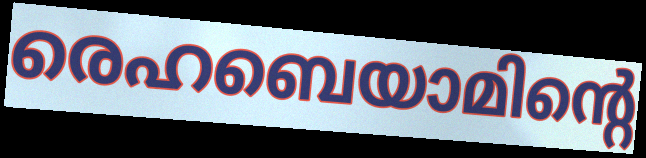
രെഹബെയാമിന്റെ